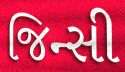
જિન્સી